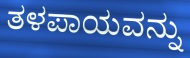
ತಳಪಾಯವನ್ನು